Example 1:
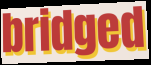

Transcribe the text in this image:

bridged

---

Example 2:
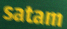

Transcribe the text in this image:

satam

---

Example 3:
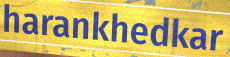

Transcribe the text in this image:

harankhedkar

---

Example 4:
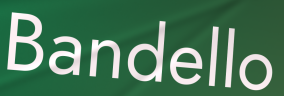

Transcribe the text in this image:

Bandello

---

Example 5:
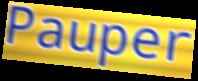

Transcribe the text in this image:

Pauper